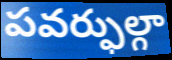
పవర్ఫుల్గా